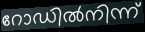
റോഡിൽനിന്ന്